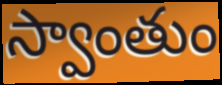
స్వాంతుం